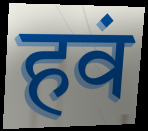
हवं